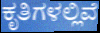
ಕೃತಿಗಳಲ್ಲಿವೆ